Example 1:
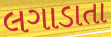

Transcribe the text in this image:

લગાડાતા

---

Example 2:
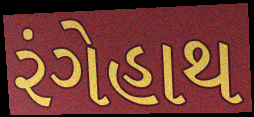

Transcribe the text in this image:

રંગેહાથ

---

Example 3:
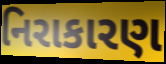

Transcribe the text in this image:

નિરાકારણ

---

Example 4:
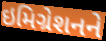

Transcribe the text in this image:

ઇમિગ્રેશનને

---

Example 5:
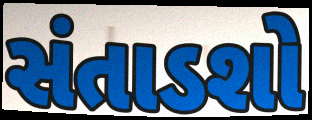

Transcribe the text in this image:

સંતાડશો